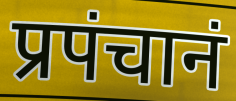
प्रपंचानं